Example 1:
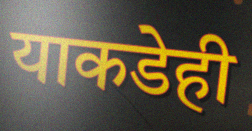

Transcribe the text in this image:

याकडेही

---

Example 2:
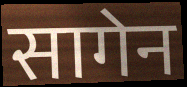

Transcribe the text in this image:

सागेन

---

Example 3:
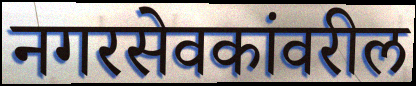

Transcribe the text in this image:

नगरसेवकांवरील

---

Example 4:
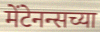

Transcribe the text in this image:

मेंटेनन्सच्या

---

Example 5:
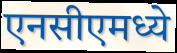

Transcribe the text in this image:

एनसीएमध्ये